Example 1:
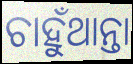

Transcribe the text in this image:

ଚାହୁଁଥାନ୍ତା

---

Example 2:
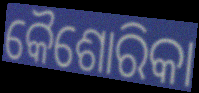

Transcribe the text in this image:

କୈଶୋରିକା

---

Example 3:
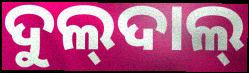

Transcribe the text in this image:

ଦୁଲ୍‍ଦାଲ୍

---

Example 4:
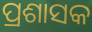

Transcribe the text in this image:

ପ୍ରଶାସକ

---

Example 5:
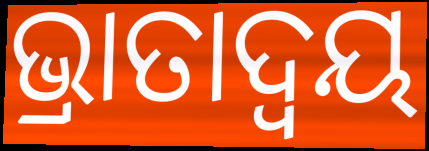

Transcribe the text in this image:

ଭ୍ରାତାଦ୍ୱୟ